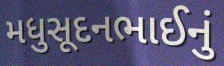
મધુસૂદનભાઈનું